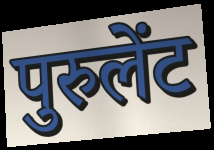
पुरुलेंट